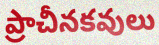
ప్రాచీనకవులు